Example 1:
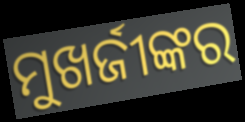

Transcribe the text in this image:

ମୁଖର୍ଜୀଙ୍କର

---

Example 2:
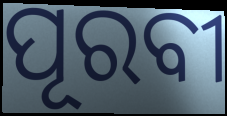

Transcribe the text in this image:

ପୂରବୀ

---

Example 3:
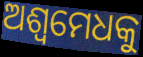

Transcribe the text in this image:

ଅଶ୍ୱମେଧକୁ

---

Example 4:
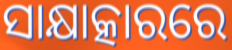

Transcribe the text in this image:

ସାକ୍ଷାତ୍କାରରେ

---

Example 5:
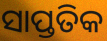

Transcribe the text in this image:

ସାପ୍ତତିକ